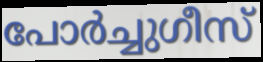
പോർച്ചുഗീസ്